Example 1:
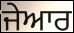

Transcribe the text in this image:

ਜੇਆਰ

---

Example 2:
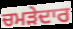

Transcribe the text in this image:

ਚਮੜੇਦਾਰ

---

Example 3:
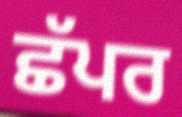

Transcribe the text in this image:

ਛੱਪਰ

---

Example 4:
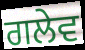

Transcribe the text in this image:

ਗਲੇਵ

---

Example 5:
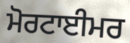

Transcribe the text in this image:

ਮੋਰਟਾਈਮਰ